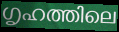
ഗൃഹത്തിലെ